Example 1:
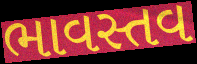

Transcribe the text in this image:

ભાવસ્તવ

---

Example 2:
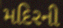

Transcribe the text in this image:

મદિરની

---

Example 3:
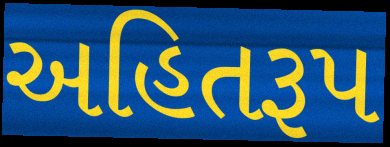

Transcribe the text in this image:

અહિતરૂપ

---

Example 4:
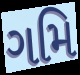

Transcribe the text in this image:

ગમિ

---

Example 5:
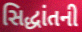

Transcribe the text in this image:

સિદ્ધાંતની